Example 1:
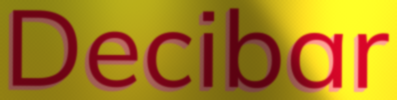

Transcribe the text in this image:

Decibar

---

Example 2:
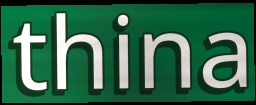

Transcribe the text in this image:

thina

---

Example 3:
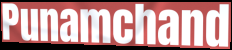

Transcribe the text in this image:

Punamchand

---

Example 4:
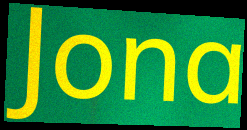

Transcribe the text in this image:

Jona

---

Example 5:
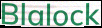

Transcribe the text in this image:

Blalock